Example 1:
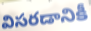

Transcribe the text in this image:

విసరడానికీ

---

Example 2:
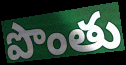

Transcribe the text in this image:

పొంతు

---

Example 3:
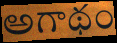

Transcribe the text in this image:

అగాథం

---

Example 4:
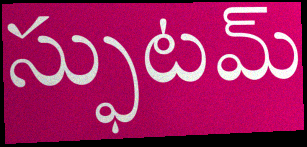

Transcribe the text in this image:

స్ఫుటమ్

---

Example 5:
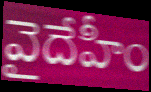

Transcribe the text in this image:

వైదేహీం